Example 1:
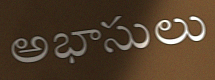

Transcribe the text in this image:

అభాసులు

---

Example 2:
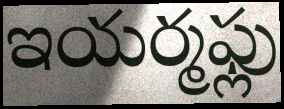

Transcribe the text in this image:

ఇయర్మఫ్లు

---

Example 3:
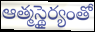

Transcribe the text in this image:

ఆత్మస్థైర్యంతో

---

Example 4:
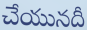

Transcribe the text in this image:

చేయునదీ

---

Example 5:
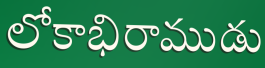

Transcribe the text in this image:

లోకాభిరాముడు